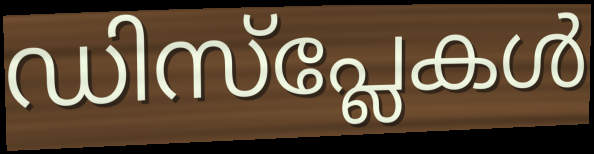
ഡിസ്പ്ലേകൾ